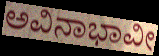
ಅವಿನಾಭಾವೀ